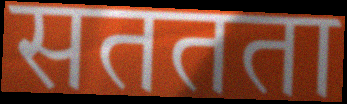
सततता